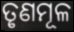
ତୃଣମୂଳ